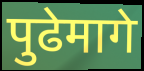
पुढेमागे